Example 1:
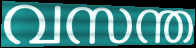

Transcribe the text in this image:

വസന്ത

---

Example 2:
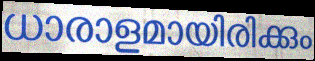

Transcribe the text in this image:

ധാരാളമായിരിക്കും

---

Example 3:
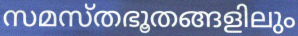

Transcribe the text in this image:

സമസ്തഭൂതങ്ങളിലും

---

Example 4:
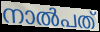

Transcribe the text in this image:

നാൽപത്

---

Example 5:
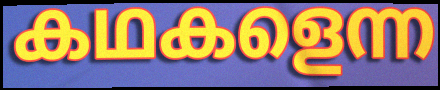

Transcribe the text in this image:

കഥകളെന്ന